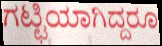
ಗಟ್ಟಿಯಾಗಿದ್ದರೂ